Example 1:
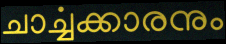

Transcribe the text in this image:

ചാൎച്ചക്കാരനും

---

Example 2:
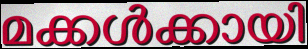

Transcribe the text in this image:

മക്കൾക്കായി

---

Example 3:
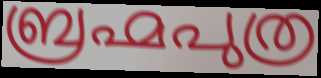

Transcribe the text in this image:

ബ്രഹ്മപുത്ര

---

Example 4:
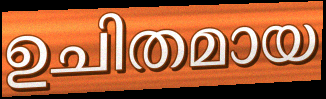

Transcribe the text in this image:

ഉചിതമായ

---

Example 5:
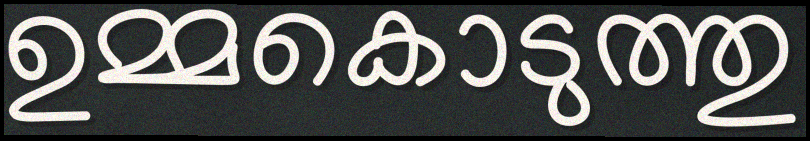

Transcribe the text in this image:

ഉമ്മകൊടുത്തു